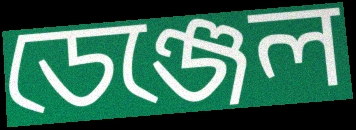
ডেঞ্জেল